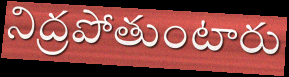
నిద్రపోతుంటారు